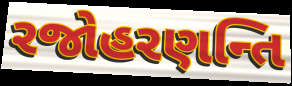
રજોહરણન્તિ